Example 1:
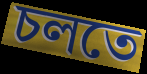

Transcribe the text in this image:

চলতে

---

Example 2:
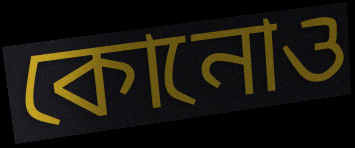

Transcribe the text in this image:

কোনোও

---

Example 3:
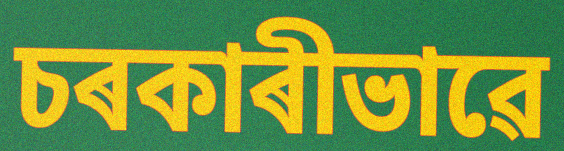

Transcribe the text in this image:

চৰকাৰীভাৱে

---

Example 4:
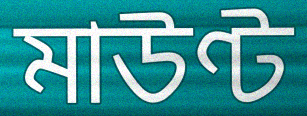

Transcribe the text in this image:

মাউণ্ট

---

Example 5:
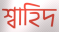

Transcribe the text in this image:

শ্বাহিদ